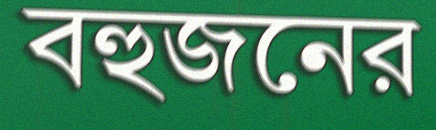
বহুজনের